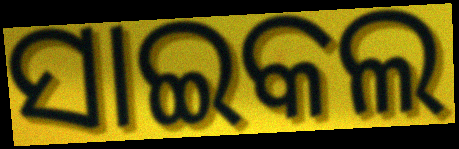
ସାଇକଲ